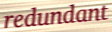
redundant